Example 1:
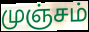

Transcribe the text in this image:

முஞ்சம்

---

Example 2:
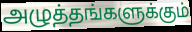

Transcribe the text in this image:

அழுத்தங்களுக்கும்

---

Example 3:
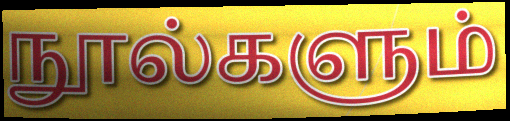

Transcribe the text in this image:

நூல்களும்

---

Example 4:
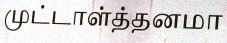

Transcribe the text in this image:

முட்டாள்த்தனமா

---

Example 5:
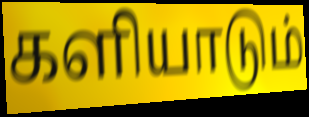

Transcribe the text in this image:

களியாடும்